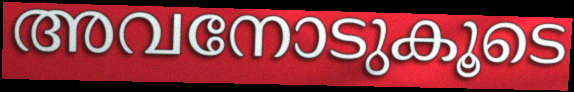
അവനോടുകൂടെ